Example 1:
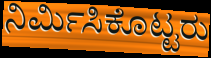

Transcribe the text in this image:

ನಿರ್ಮಿಸಿಕೊಟ್ಟರು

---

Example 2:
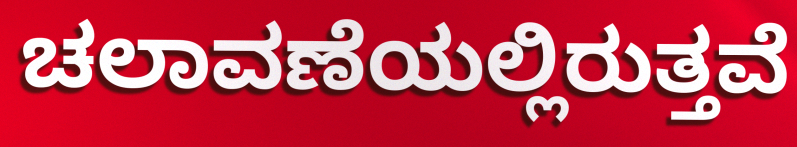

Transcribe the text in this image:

ಚಲಾವಣೆಯಲ್ಲಿರುತ್ತವೆ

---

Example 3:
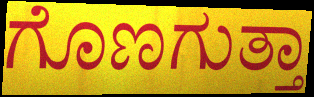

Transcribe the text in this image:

ಗೊಣಗುತ್ತಾ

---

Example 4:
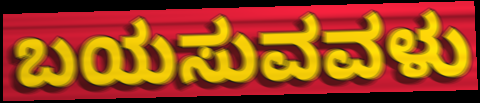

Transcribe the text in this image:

ಬಯಸುವವಳು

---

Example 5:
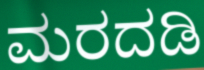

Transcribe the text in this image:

ಮರದಡಿ